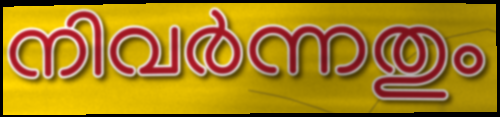
നിവർന്നതും